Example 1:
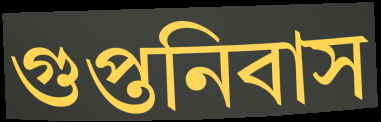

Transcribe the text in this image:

গুপ্তনিবাস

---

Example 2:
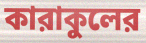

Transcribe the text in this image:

কারাকুলের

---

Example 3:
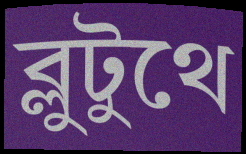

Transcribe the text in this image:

ব্লুটুথে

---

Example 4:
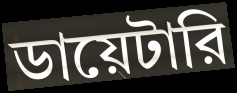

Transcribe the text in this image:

ডায়েটারি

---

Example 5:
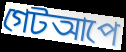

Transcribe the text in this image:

গেটআপে